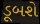
ડૂબશે